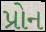
પ્રોન